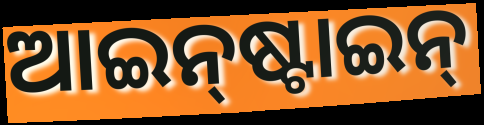
ଆଇନ୍‌ଷ୍ଟାଇନ୍